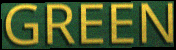
GREEN